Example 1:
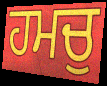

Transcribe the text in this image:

ਹਮਚੁ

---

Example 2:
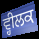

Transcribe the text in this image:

ਵ੍ਹੀਲਕ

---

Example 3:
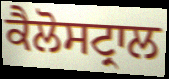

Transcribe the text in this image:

ਕੈਲੋਸਟ੍ਰਾਲ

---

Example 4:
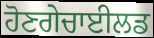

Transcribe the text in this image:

ਹੋਣਗੇਚਾਈਲਡ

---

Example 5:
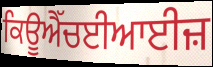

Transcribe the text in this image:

ਕਿਊਐੱਚਈਆਈਜ਼